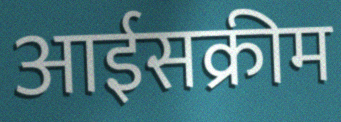
आईसक्रीम